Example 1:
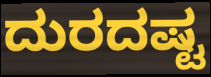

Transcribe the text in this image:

ದುರದಷ್ಟ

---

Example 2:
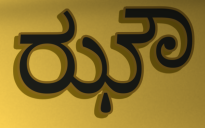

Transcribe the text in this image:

ಝೌ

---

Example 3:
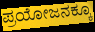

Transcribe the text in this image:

ಪ್ರಯೋಜನಕ್ಕೂ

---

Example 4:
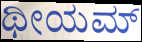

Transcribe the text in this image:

ಥೀಯಮ್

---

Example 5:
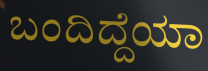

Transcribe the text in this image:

ಬಂದಿದ್ದೆಯಾ